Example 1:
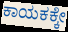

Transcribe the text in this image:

ಕಾಯಕಕ್ಕೇ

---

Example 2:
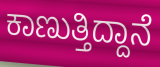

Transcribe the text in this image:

ಕಾಣುತ್ತಿದ್ದಾನೆ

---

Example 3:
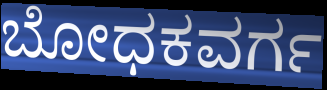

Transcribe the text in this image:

ಬೋಧಕವರ್ಗ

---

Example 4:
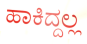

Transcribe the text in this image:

ಹಾಕಿದ್ದಲ್ಲ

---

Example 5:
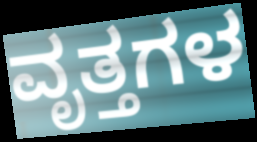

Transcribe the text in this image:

ವೃತ್ತಗಳ